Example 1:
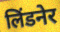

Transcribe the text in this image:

लिंडनेर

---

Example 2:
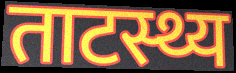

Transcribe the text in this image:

ताटस्थ्य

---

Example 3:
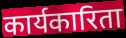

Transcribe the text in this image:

कार्यकारिता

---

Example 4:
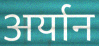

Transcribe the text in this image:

अर्यान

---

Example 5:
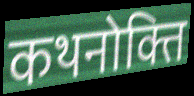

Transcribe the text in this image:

कथनोक्ति